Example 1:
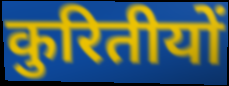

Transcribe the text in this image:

कुरितीयों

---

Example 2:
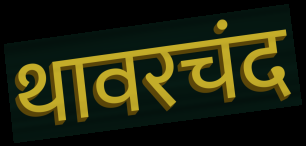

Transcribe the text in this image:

थावरचंद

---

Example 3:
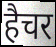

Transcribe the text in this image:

हैचर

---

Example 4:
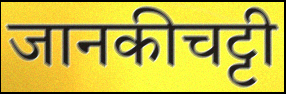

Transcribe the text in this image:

जानकीचट्टी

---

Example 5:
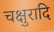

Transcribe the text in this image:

चक्षुरादि